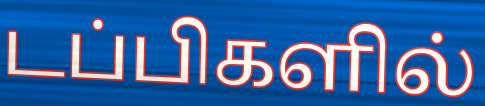
டப்பிகளில்